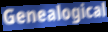
Genealogical